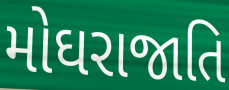
મોઘરાજાતિ